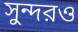
সুন্দরও